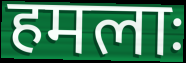
हमलाः